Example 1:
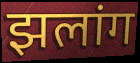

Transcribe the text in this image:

झलांग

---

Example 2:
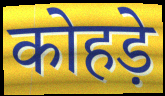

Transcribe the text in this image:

कोहड़े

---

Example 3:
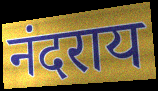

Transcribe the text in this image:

नंदराय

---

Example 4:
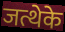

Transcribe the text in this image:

जत्थेके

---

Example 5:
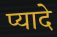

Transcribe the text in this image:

प्यादे